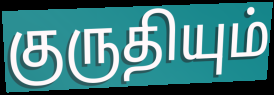
குருதியும்